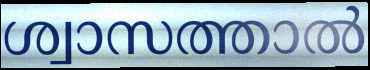
ശ്വാസത്താൽ